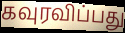
கவுரவிப்பது